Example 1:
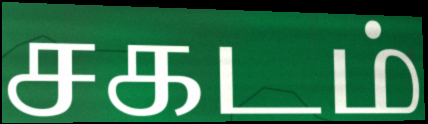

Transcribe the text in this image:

சகடம்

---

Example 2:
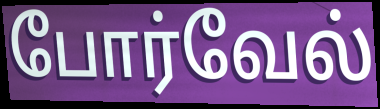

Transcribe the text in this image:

போர்வேல்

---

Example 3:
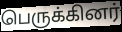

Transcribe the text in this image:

பெருக்கினர்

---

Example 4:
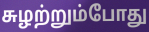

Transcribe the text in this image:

சுழற்றும்போது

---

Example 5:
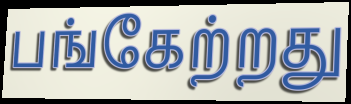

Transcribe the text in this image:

பங்கேற்றது